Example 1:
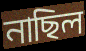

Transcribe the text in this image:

নাছিল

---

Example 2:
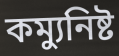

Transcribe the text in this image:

কম্যুনিষ্ট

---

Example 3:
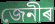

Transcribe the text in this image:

জেনীৰ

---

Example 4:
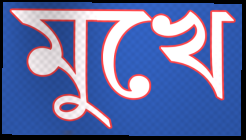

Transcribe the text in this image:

মুখে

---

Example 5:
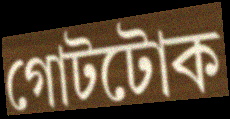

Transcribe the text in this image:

গোটটোক